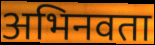
अभिनवता